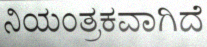
ನಿಯಂತ್ರಕವಾಗಿದೆ